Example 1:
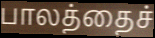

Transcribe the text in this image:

பாலத்தைச்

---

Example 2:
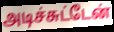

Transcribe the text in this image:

அடிச்சுட்டேன்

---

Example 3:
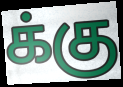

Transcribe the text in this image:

க்கு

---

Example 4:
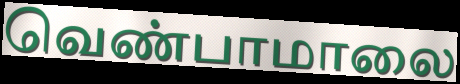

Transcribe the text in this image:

வெண்பாமாலை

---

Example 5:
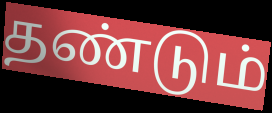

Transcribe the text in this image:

தண்டும்